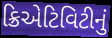
ક્રિએટિવિટીનું